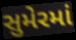
સુમેરમાં